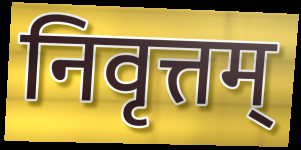
निवृत्तम्